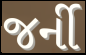
જર્ની